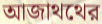
আজাথথের